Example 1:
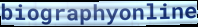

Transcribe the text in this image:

biographyonline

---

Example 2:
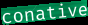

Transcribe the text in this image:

conative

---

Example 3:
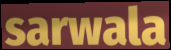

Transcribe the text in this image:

sarwala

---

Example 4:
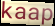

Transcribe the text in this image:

kaap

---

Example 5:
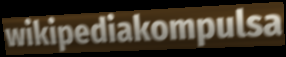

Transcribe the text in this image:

wikipediakompulsa